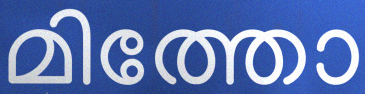
മിത്തോ